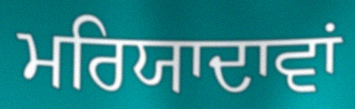
ਮਰਿਯਾਦਾਵਾਂ